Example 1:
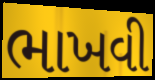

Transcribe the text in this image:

ભાખવી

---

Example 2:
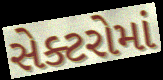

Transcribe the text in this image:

સેક્ટરોમાં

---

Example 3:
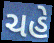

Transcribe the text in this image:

ચહે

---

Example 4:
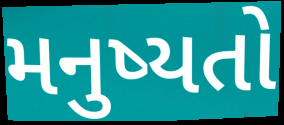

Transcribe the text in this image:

મનુષ્યતો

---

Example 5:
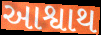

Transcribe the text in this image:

આશ્વાથ